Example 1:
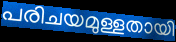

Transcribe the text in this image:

പരിചയമുള്ളതായി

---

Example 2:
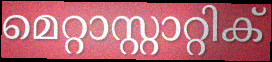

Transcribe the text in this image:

മെറ്റാസ്റ്റാറ്റിക്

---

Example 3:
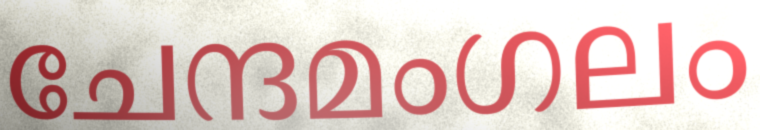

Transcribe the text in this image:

ചേന്ദമംഗലം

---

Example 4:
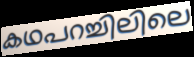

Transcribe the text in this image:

കഥപറച്ചിലിലെ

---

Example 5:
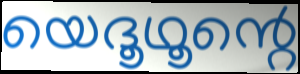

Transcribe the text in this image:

യെദൂഥൂന്റെ